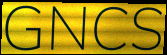
GNCS